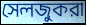
সেলজুকরা